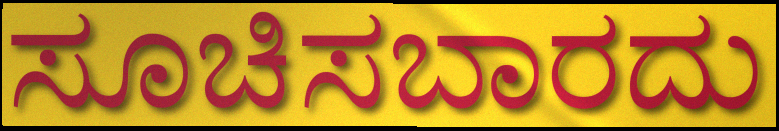
ಸೂಚಿಸಬಾರದು